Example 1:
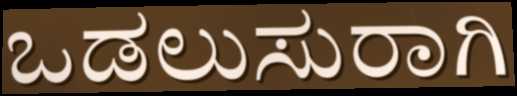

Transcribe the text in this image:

ಒಡಲುಸುರಾಗಿ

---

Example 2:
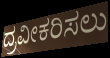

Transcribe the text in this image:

ದ್ರವೀಕರಿಸಲು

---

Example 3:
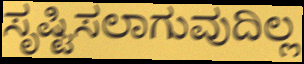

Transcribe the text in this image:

ಸೃಷ್ಟಿಸಲಾಗುವುದಿಲ್ಲ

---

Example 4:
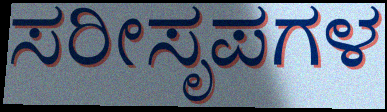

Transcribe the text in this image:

ಸರೀಸೃಪಗಳ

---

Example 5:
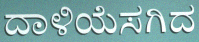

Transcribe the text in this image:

ದಾಳಿಯೆಸಗಿದ